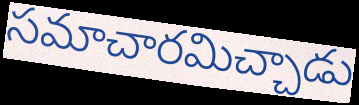
సమాచారమిచ్చాడు